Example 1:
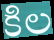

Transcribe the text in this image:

కిల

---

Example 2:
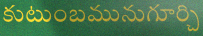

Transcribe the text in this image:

కుటుంబమునుగూర్చి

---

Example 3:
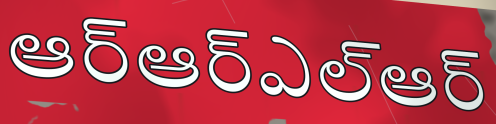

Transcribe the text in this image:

ఆర్ఆర్ఎల్ఆర్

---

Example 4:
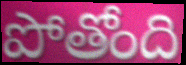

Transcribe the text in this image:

పోతోంది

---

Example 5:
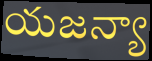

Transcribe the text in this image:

యజన్యా